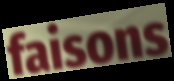
faisons